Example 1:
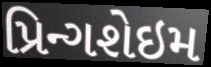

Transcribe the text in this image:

પ્રિન્ગશેઇમ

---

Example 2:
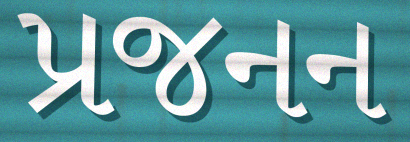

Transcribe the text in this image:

પ્રજનન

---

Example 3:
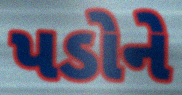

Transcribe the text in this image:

પડોને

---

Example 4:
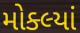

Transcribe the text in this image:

મોક્લ્યાં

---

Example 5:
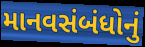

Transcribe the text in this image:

માનવસંબંધોનું